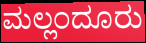
ಮಲ್ಲಂದೂರು